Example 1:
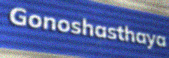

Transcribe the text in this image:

Gonoshasthaya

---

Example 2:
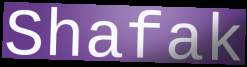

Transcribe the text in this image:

Shafak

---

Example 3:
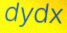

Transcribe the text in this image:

dydx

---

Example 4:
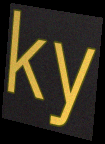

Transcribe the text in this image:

ky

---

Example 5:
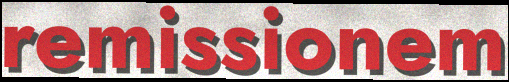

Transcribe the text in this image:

remissionem